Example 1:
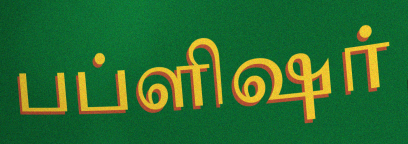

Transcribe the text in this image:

பப்ளிஷர்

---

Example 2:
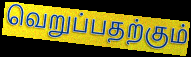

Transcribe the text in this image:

வெறுப்பதற்கும்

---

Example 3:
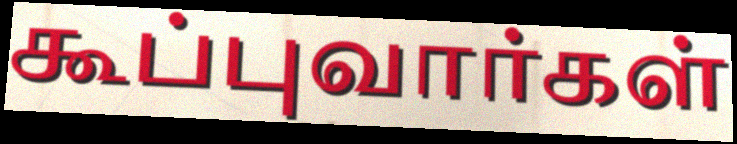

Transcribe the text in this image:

கூப்புவார்கள்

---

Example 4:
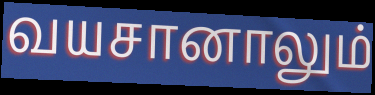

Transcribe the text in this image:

வயசானாலும்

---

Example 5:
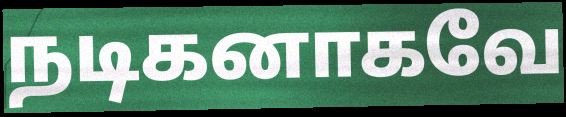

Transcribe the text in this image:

நடிகனாகவே